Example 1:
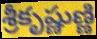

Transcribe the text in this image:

శ్రీకృష్ణుణ్ణి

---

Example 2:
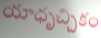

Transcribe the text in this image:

యాధృచ్చికం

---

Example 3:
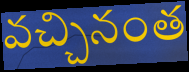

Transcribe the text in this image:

వచ్చినంత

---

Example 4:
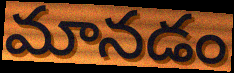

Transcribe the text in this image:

మానడం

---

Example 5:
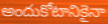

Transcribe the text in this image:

అందుకోటానికైనా